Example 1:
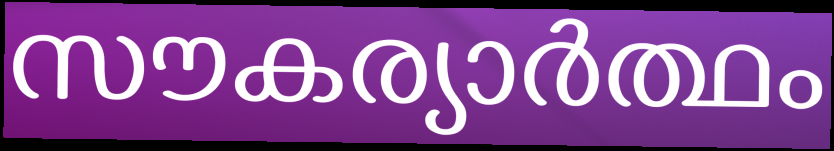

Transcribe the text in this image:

സൗകര്യാർത്ഥം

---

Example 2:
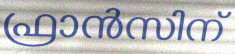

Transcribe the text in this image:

ഫ്രാൻസിന്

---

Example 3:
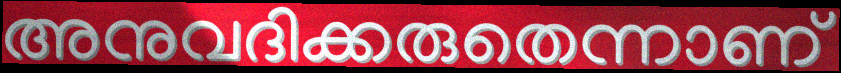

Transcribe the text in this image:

അനുവദിക്കരുതെന്നാണ്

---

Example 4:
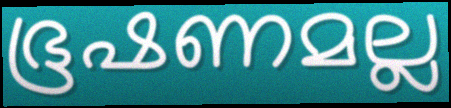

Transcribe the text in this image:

ഭൂഷണമല്ല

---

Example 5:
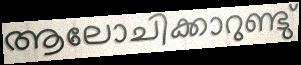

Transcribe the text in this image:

ആലോചിക്കാറുണ്ടു്